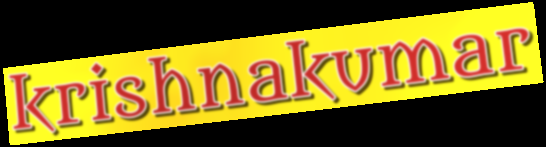
krishnakumar